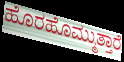
ಹೊರಹೊಮ್ಮುತ್ತಾರೆ